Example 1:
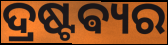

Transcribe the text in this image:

ଦ୍ରଷ୍ଟଵ୍ୟର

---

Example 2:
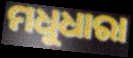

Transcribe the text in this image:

ମଧୁଧାରା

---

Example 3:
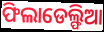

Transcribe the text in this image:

ଫିଲାଡେଲ୍ଫିଆ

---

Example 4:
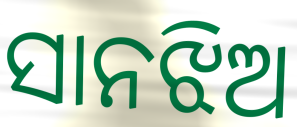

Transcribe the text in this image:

ସାନଝିଅ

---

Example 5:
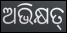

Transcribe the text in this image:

ଅଭିକ୍ଷତ୍